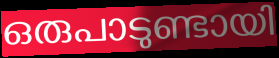
ഒരുപാടുണ്ടായി